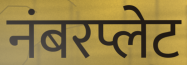
नंबरप्लेट